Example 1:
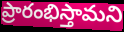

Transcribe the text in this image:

ప్రారంభిస్తామని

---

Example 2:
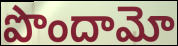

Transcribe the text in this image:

పొందామో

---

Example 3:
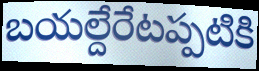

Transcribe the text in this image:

బయల్దేరేటప్పటికి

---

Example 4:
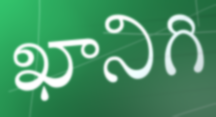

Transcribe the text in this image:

ఖానిగి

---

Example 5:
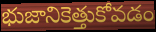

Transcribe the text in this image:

భుజానికెత్తుకోవడం